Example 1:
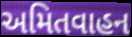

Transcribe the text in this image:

અમિતવાહન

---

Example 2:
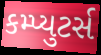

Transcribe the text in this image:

કમ્પ્યુટર્સ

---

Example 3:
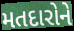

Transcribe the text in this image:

મતદારોને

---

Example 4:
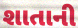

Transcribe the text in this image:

શાતાની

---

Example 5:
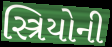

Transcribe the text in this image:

સ્ત્રિયોની